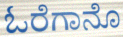
ಓರೆಗಾನೊ